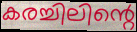
കരച്ചിലിന്റെ